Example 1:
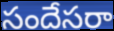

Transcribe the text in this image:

సందేసరా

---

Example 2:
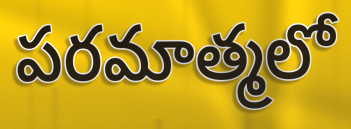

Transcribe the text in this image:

పరమాత్మలో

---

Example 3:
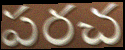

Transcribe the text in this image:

పరచ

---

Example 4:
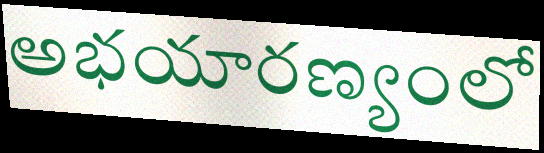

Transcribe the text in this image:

అభయారణ్యంలో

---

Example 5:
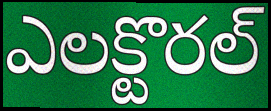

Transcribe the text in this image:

ఎలక్టొరల్